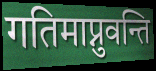
गतिमाप्नुवन्ति